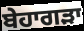
ਬੇਹਾਗੜਾ